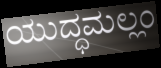
ಯುದ್ಧಮಲ್ಲಂ